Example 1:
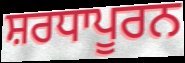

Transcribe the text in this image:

ਸ਼ਰਧਾਪੂਰਨ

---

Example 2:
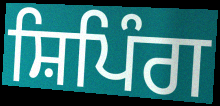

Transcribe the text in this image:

ਸ਼ਿਪਿੰਗ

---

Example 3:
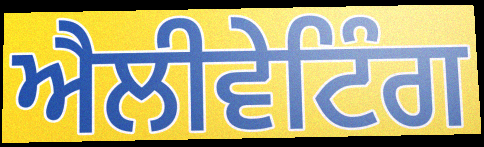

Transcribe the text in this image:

ਐਲੀਵੇਟਿੰਗ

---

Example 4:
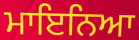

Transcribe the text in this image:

ਮਾਇਨਿਆ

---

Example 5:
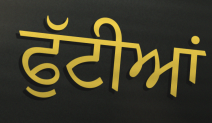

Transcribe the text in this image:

ਫੁੱਟੀਆਂ